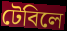
টেবিলে